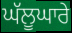
ਘੱਲੂਘਾਰੇ